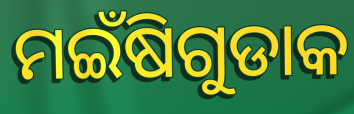
ମଇଁଷିଗୁଡାକ